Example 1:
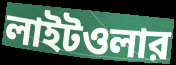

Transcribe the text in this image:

লাইটওলার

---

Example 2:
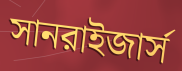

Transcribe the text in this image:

সানরাইজার্স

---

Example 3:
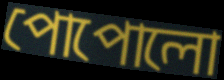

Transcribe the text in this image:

পোপোলো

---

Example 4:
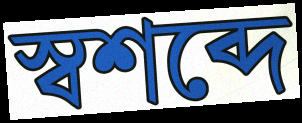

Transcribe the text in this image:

স্বশব্দে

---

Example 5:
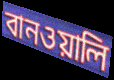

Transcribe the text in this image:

বানওয়ালি